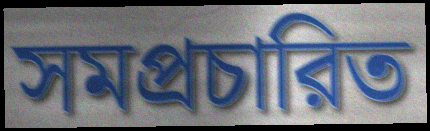
সমপ্রচারিত